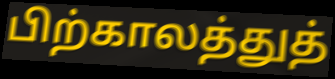
பிற்காலத்துத்